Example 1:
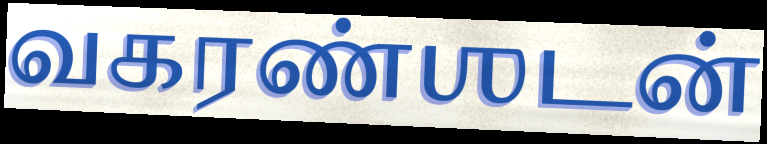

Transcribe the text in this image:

வகரண்ஶடன்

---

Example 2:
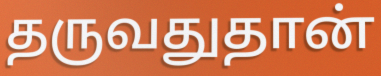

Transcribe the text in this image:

தருவதுதான்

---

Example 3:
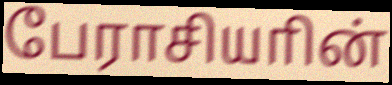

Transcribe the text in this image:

பேராசியரின்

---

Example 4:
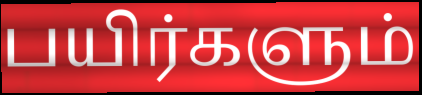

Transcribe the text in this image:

பயிர்களும்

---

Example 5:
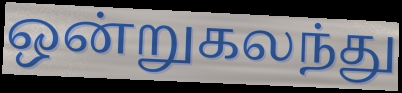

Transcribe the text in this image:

ஒன்றுகலந்து